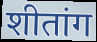
शीतांग